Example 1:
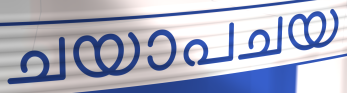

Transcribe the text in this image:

ചയാപചയ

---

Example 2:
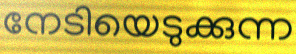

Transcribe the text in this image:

നേടിയെടുക്കുന്ന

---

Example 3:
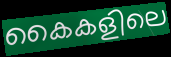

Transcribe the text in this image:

കൈകളിലെ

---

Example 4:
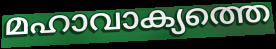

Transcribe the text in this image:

മഹാവാക്യത്തെ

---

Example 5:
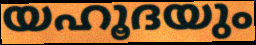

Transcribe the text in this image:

യഹൂദയും